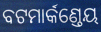
ବଟମାର୍କଣ୍ଡେୟ